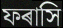
ফৰাসি